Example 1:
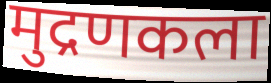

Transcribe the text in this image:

मुद्रणकला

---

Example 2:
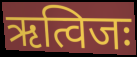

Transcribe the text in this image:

ऋत्विजः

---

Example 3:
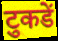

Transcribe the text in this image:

टुकडें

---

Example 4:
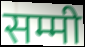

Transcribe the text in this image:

सम्मी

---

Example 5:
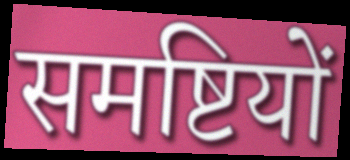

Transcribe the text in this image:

समष्टियों